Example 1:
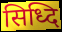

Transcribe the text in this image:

सिध्दि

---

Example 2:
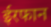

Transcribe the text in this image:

ईरफान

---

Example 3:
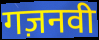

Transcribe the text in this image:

गज़नवी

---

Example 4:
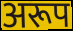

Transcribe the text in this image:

अरूप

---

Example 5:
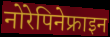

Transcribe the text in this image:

नोरेपिनेफ्राइन